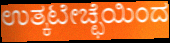
ಉತ್ಕಟೇಚ್ಛೆಯಿಂದ